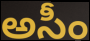
అసీం